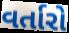
વર્તારો